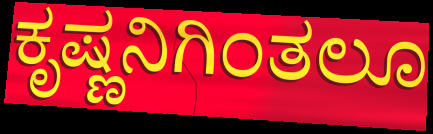
ಕೃಷ್ಣನಿಗಿಂತಲೂ